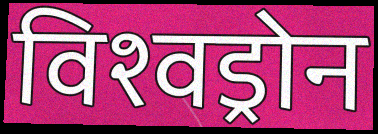
विश्वड्रोन